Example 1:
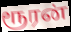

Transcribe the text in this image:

ரூரன்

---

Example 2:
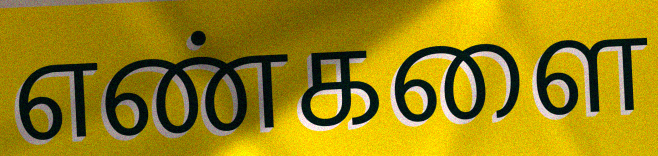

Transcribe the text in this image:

எண்களை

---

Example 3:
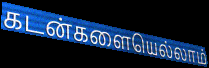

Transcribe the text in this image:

கடன்களையெல்லாம்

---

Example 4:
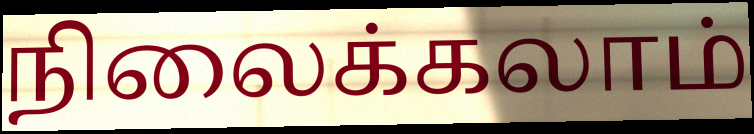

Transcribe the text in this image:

நிலைக்கலாம்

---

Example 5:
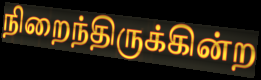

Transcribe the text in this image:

நிறைந்திருக்கின்ற